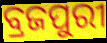
ବ୍ରଜପୁରୀ